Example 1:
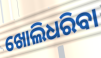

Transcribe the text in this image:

ଖୋଲିଧରିବା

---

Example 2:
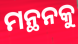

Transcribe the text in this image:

ମନ୍ଥନକୁ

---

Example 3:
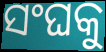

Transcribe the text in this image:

ସଂଘକୁ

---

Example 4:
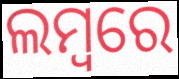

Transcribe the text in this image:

ଲମ୍ବରେ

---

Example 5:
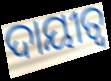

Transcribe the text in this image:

ଦାୟୀତ୍ୱ